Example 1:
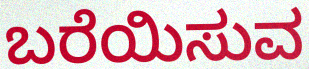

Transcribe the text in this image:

ಬರೆಯಿಸುವ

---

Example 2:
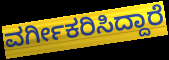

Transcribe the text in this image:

ವರ್ಗೀಕರಿಸಿದ್ದಾರೆ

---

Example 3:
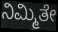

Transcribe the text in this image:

ನಿಮ್ಮಿತೇ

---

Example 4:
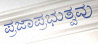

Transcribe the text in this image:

ಪ್ರಜಾಪ್ರಭುತ್ವವು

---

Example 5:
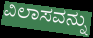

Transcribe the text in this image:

ವಿಲಾಸವನ್ನು